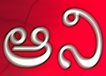
ఆని